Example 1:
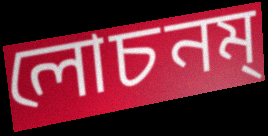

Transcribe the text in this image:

লোচনম্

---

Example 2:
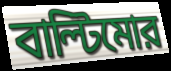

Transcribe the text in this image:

বাল্টিমোর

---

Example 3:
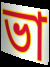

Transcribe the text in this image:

ভা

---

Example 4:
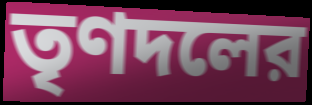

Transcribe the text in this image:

তৃণদলের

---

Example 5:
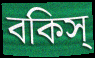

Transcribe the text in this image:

বকিস্